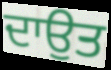
ਦਾਉਤ